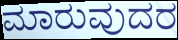
ಮಾರುವುದರ